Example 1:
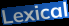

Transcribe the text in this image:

Lexical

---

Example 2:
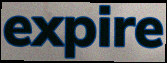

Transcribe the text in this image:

expire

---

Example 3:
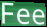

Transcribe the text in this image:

Fee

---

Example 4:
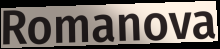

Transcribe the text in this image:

Romanova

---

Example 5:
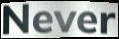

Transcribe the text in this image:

Never